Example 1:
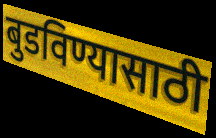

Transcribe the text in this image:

बुडविण्यासाठी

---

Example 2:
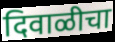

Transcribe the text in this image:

दिवाळीचा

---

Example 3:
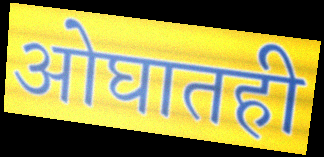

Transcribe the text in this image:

ओघातही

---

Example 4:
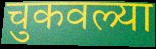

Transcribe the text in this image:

चुकवल्या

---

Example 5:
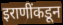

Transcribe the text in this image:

इराणींकडून